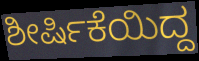
ಶೀರ್ಷಿಕೆಯಿದ್ದ